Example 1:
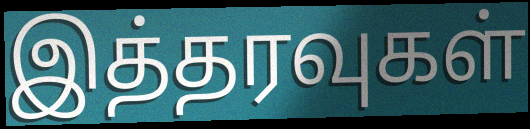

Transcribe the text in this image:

இத்தரவுகள்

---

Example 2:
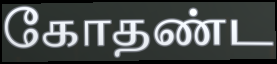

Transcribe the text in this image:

கோதண்ட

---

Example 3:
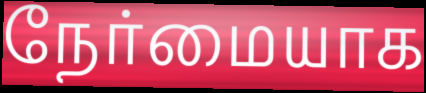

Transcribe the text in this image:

நேர்மையாக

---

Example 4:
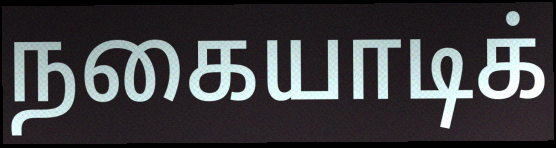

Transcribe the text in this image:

நகையாடிக்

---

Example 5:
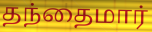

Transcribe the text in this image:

தந்தைமார்